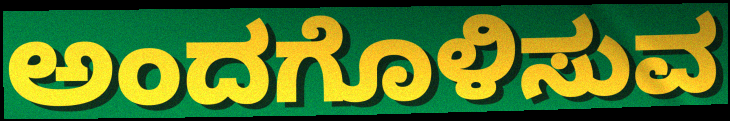
ಅಂದಗೊಳಿಸುವ